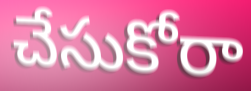
చేసుకోరా